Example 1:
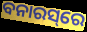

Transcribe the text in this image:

ବନାରସ୍‌ରେ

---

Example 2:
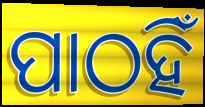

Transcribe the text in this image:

ପାଠହିଁ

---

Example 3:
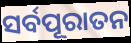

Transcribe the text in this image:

ସର୍ବପୂରାତନ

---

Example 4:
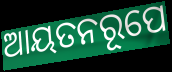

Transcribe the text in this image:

ଆୟତନରୂପେ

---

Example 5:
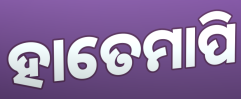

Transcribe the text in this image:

ହାତେମାପି